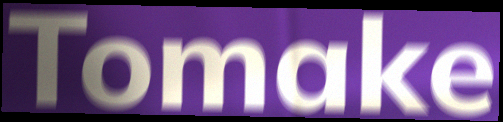
Tomake